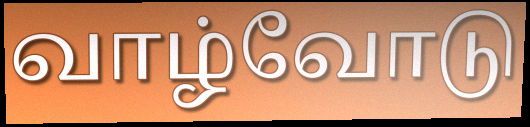
வாழ்வோடு